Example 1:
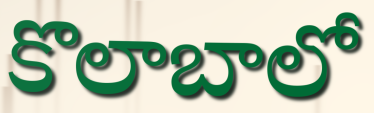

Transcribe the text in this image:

కొలాబాలో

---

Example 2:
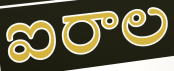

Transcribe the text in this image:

ఐరాల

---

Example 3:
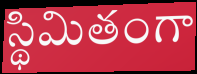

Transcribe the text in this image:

స్థిమితంగా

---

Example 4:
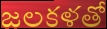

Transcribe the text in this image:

జలకళతో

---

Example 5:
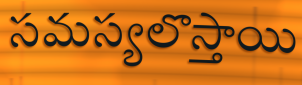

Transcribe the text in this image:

సమస్యలొస్తాయి